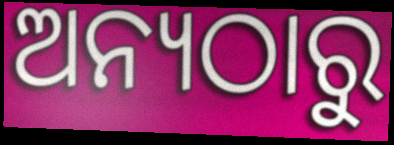
ଅନ୍ୟଠାରୁ